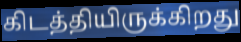
கிடத்தியிருக்கிறது